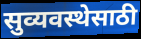
सुव्यवस्थेसाठी